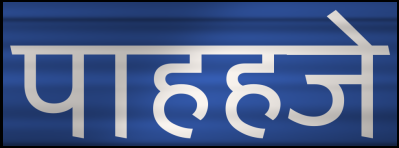
पाहहजे